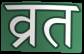
व्रत